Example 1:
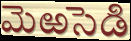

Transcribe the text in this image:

మెఱసెడి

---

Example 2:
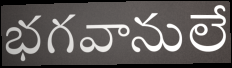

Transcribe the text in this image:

భగవానులే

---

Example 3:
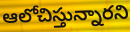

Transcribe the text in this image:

ఆలోచిస్తున్నారని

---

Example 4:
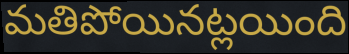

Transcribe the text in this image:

మతిపోయినట్లయింది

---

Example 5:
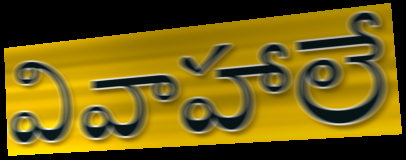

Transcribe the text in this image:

వివాహాలే